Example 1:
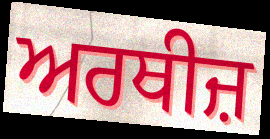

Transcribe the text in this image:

ਅਰਥੀਜ਼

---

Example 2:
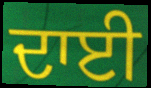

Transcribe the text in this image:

ਦਾਈ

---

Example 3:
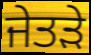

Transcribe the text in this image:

ਜੇਤੜੇ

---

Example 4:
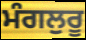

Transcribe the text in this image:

ਮੰਗਲੁਰੂ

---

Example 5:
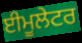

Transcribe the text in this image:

ਈਮੂਲੇਟਰ